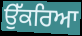
ਉੱਕਰਿਆ